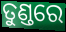
ତୁଣ୍ଡରେ